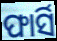
ଫାର୍ସି